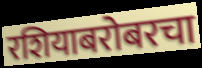
रशियाबरोबरचा